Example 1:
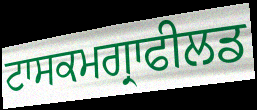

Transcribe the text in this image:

ਟਾਸਕਮਗ੍ਰਾਫੀਲਡ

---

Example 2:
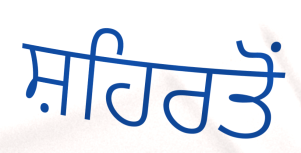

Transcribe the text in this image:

ਸ਼ਹਿਰਤੋਂ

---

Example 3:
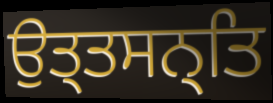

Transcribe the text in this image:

ਉਤ੍ਤਸਨ੍ਤਿ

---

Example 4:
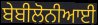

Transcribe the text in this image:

ਬੇਬੀਲੋਨੀਆਈ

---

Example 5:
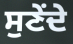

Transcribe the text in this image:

ਸੁਣੇਂਦੇ